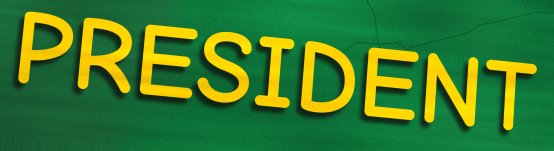
PRESIDENT